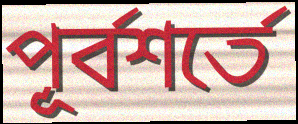
পূর্বশর্তে